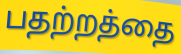
பதற்றத்தை